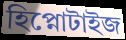
হিপ্নোটাইজ